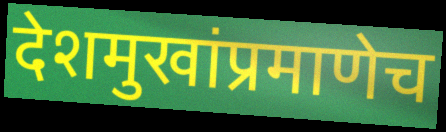
देशमुखांप्रमाणेच